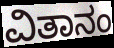
ವಿತಾನಂ